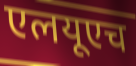
एलयूएच